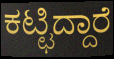
ಕಟ್ಟಿದ್ದಾರೆ